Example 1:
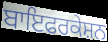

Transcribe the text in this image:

ਬਾਇਫਰਕੇਸ਼ਨ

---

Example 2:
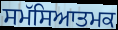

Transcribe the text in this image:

ਸਮੱਸਿਆਤਮਕ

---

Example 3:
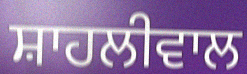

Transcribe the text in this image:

ਸ਼ਾਹਲੀਵਾਲ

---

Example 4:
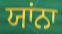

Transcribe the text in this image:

ਯਾਂਨਾ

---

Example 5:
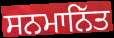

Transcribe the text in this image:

ਸਨਮਾਨਿੱਤ